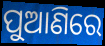
ପୁଆଣିରେ